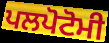
ਪਲਪੋਟੋਮੀ